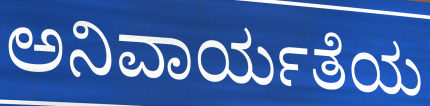
ಅನಿವಾರ್ಯತೆಯ